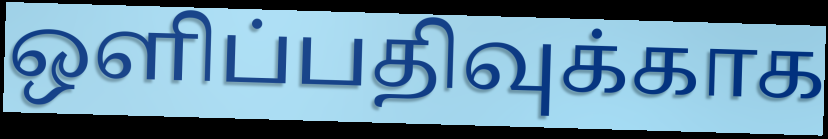
ஒளிப்பதிவுக்காக